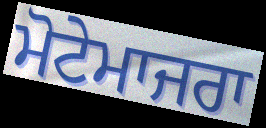
ਮੋਟੇਮਾਜਰਾ